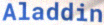
Aladdin